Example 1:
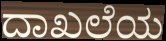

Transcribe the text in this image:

ದಾಖಲೆಯ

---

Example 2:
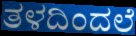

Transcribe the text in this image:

ತಳದಿಂದಲೆ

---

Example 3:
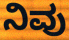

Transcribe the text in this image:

ನಿವು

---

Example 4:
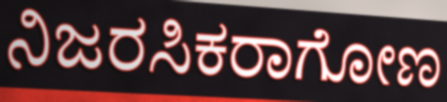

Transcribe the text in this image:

ನಿಜರಸಿಕರಾಗೋಣ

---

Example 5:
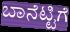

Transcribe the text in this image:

ಬಾನೆಟ್ಟಿಗೆ